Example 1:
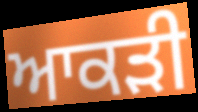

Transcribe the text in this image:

ਆਕੜੀ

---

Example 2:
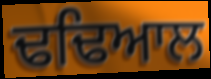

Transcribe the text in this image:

ਢਢਿਆਲ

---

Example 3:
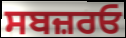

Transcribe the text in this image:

ਸਬਜ਼ਰਓ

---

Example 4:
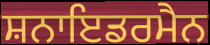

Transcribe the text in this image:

ਸ਼ਨਾਇਡਰਮੈਨ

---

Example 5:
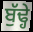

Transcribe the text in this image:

ਬੁੱਢ੍ਹੇ